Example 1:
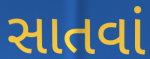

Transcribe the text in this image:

સાતવાં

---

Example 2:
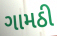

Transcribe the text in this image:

ગામઠી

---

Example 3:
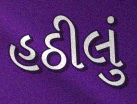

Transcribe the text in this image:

હઠીલું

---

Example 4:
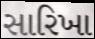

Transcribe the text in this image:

સારિખા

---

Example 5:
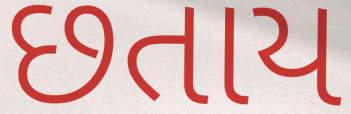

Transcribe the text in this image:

છતાય